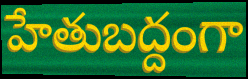
హేతుబద్దంగా